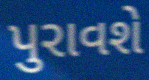
પુરાવશે